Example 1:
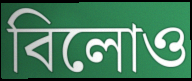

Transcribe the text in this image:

বিলোও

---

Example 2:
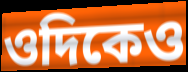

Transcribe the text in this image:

ওদিকেও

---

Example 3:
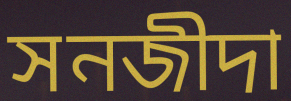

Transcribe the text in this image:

সনজীদা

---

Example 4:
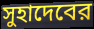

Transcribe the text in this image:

সুহাদেবের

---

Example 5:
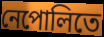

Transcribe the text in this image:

নেপোলিতে